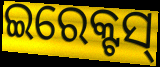
ଇରେକ୍ଟସ୍